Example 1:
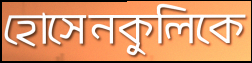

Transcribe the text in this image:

হোসেনকুলিকে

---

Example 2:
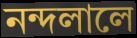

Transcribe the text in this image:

নন্দলালে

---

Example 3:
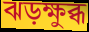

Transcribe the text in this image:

ঝড়ক্ষুব্ধ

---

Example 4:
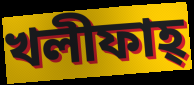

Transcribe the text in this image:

খলীফাহ্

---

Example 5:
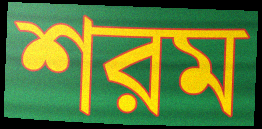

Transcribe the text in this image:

শরম